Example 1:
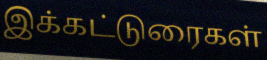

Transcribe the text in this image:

இக்கட்டுரைகள்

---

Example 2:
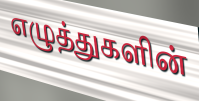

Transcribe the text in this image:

எழுத்துகளின்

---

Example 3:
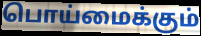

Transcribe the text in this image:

பொய்மைக்கும்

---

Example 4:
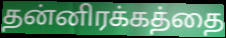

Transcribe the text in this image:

தன்னிரக்கத்தை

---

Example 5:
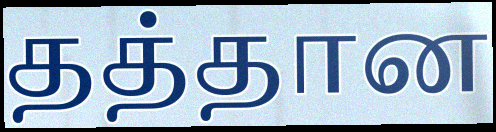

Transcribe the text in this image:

தத்தான